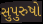
સુપુરુષો